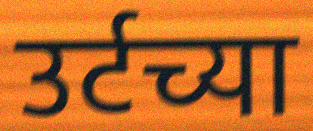
उर्टच्या